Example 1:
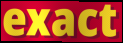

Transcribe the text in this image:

exact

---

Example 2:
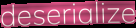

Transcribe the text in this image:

deserialize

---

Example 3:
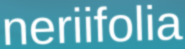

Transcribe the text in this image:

neriifolia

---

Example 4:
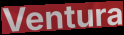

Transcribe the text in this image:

Ventura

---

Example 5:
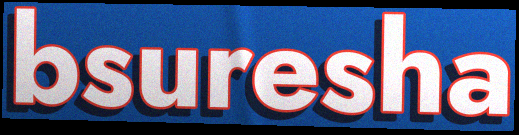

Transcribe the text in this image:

bsuresha